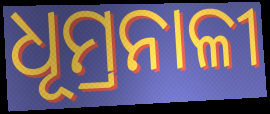
ଧୂମ୍ରନାଳୀ